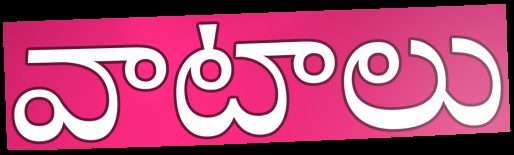
వాటాలు